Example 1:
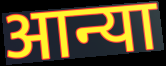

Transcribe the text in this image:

आन्या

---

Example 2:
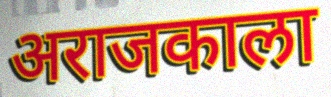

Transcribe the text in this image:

अराजकाला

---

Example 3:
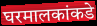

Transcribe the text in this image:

घरमालकांकडे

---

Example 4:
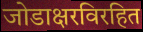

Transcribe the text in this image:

जोडाक्षरविरहित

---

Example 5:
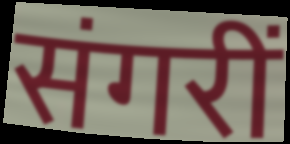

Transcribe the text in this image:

संगरीं